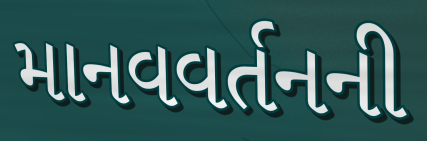
માનવવર્તનની